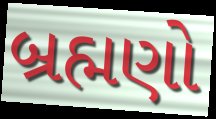
બ્રહ્મણો